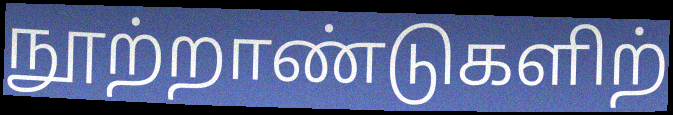
நூற்றாண்டுகளிற்